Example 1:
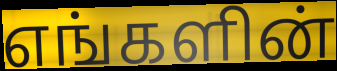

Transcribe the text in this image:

எங்களின்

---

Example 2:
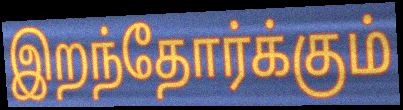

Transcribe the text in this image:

இறந்தோர்க்கும்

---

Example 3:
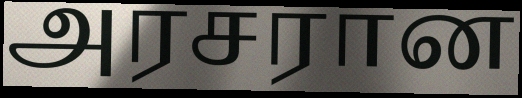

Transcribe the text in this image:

அரசரான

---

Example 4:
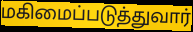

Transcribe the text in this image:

மகிமைப்படுத்துவார்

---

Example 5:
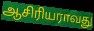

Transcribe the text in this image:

ஆசிரியராவது